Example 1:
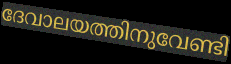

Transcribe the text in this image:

ദേവാലയത്തിനുവേണ്ടി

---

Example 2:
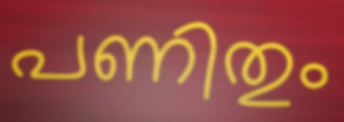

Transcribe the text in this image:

പണിതും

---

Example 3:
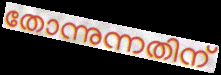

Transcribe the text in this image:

തോന്നുന്നതിന്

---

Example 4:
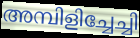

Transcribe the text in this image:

അമ്പിളിച്ചേച്ചി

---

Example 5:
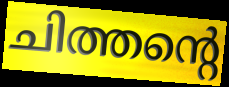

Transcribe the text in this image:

ചിത്തന്റെ